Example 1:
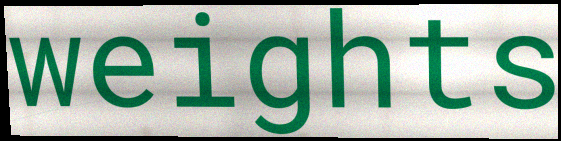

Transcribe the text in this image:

weights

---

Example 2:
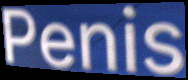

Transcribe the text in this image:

Penis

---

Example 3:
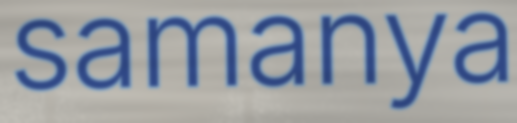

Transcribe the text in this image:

samanya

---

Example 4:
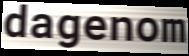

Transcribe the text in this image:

dagenom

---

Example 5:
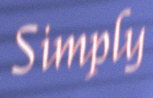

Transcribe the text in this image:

Simply